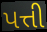
પત્તી